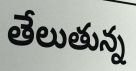
తేలుతున్న